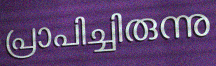
പ്രാപിച്ചിരുന്നു